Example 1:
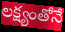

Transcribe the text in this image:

లక్ష్యంతోనే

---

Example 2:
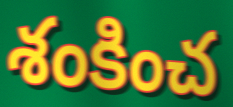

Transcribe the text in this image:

శంకించ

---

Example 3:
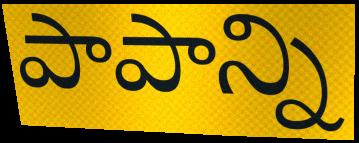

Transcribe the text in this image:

పాపాన్ని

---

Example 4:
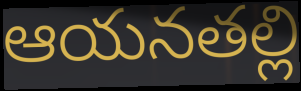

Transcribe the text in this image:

ఆయనతల్లి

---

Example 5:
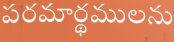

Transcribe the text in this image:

పరమార్థములను